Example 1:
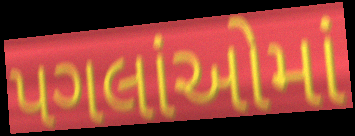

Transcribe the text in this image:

પગલાંઓમાં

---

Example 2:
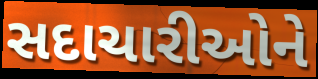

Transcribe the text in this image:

સદાચારીઓને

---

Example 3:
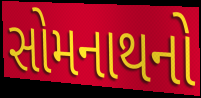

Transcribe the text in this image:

સોમનાથનો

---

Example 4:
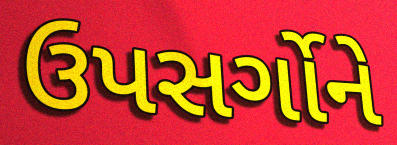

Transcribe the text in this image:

ઉપસર્ગોને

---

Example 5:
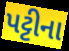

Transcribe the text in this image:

પટ્ટીના